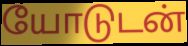
யோடுடன்